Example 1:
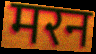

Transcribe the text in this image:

मरन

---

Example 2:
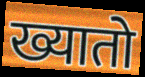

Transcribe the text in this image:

ख्यातो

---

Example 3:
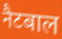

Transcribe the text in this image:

नैटबाल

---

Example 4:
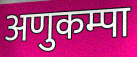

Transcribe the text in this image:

अणुकम्पा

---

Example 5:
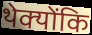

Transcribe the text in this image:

थेक्योंकि